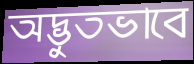
অদ্ভুতভাবে